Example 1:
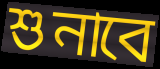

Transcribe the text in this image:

শুনাবে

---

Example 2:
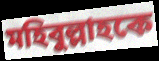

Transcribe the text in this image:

মহিবুল্লাহকে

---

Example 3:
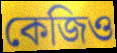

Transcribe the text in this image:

কেজিও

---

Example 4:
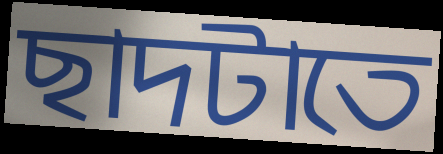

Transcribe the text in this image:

ছাদটাতে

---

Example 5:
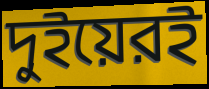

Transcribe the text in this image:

দুইয়েরই